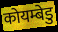
कोयम्बेडु